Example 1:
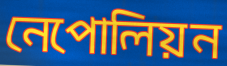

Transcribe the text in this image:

নেপোলিয়ন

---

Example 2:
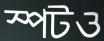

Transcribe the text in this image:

স্পটও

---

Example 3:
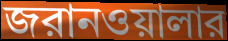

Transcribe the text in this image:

জরানওয়ালার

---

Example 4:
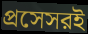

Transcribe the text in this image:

প্রসেসরই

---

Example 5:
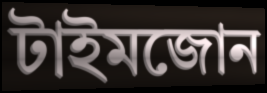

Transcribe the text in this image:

টাইমজোন